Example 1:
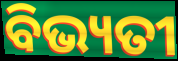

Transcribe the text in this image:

ବିଭ୍ୟତୀ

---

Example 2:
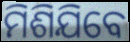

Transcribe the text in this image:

ମିଶିଯିବେ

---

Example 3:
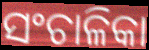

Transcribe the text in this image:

ସଂଚାଳିକା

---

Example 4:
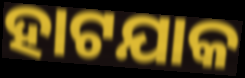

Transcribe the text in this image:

ହାଟଯାକ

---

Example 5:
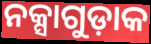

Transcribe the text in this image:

ନକ୍ସାଗୁଡ଼ାକ